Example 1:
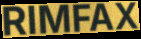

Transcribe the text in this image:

RIMFAX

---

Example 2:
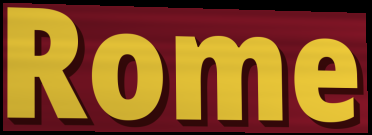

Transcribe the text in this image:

Rome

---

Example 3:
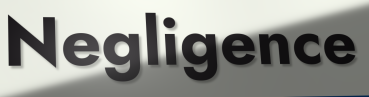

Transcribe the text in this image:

Negligence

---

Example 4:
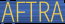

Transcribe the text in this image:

AFTRA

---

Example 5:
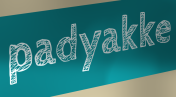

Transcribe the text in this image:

padyakke